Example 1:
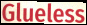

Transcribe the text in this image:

Glueless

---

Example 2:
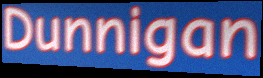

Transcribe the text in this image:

Dunnigan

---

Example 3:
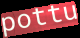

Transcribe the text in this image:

pottu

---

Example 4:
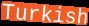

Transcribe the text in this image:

Turkish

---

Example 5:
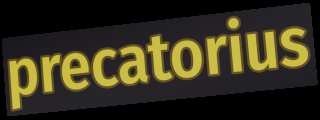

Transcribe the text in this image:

precatorius